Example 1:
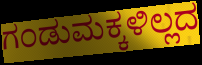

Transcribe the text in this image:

ಗಂಡುಮಕ್ಕಳಿಲ್ಲದ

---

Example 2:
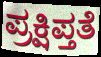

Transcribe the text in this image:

ಪ್ರಕ್ಷಿಪ್ತತೆ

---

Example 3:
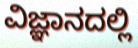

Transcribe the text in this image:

ವಿಜ್ಞಾನದಲ್ಲಿ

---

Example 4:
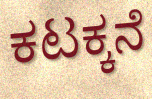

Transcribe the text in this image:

ಕಟಕ್ಕನೆ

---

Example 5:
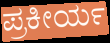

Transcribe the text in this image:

ಪ್ರಕೀರ್ಯ